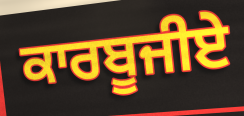
ਕਾਰਬੂਜੀਏ